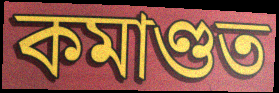
কমাণ্ডত